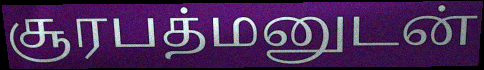
சூரபத்மனுடன்